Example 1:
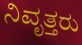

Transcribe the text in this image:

ನಿವೃತ್ತರು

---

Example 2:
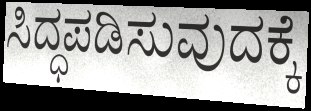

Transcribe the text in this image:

ಸಿದ್ಧಪಡಿಸುವುದಕ್ಕೆ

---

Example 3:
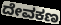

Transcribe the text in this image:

ದೇವಕಣ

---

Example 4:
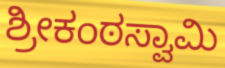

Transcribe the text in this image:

ಶ್ರೀಕಂಠಸ್ವಾಮಿ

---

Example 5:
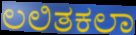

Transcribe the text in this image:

ಲಲಿತಕಲಾ